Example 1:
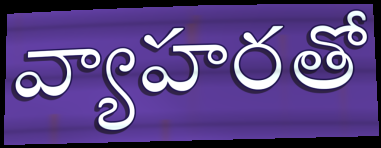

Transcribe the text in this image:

వ్యాహరతో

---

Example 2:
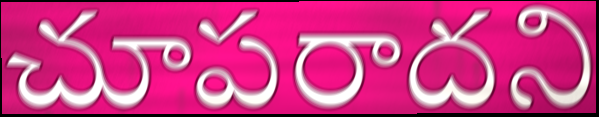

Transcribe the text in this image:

చూపరాదని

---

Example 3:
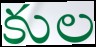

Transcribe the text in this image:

కుల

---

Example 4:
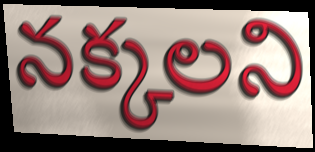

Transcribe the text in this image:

నక్కలని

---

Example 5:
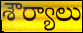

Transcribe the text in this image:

శౌర్యాలు